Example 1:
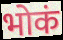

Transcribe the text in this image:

भोकं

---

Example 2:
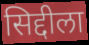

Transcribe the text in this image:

सिद्दीला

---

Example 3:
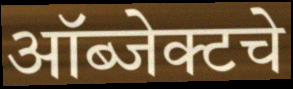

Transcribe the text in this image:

ऑब्जेक्टचे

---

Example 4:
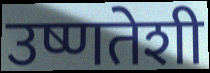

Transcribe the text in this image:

उष्णतेशी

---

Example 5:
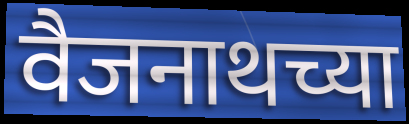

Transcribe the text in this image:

वैजनाथच्या